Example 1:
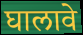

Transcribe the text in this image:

घालावे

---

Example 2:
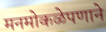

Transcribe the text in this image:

मनमोकळेपणाने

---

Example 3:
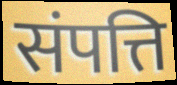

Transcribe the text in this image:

संपत्ति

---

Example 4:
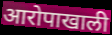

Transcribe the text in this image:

आरोपाखाली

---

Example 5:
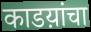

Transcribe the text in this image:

काडय़ांचा